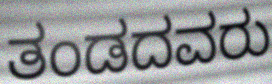
ತಂಡದವರು